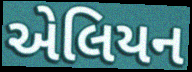
એલિયન